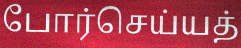
போர்செய்யத்